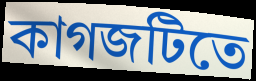
কাগজটিতে